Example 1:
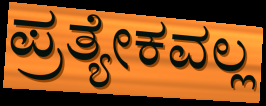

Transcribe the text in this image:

ಪ್ರತ್ಯೇಕವಲ್ಲ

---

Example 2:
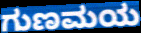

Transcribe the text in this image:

ಗುಣಮಯ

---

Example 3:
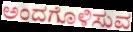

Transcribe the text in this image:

ಅಂದಗೊಳಿಸುವ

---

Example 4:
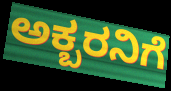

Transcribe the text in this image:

ಅಕ್ಬರನಿಗೆ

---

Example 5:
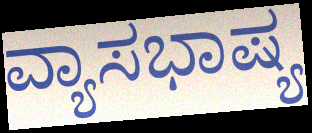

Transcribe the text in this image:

ವ್ಯಾಸಭಾಷ್ಯ